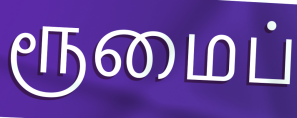
ரூமைப்